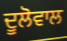
ਦੂਲੋਵਾਲ